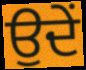
ਉਦੇਂ